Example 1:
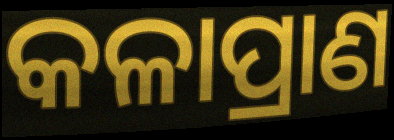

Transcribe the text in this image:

କଳାପ୍ରାଣ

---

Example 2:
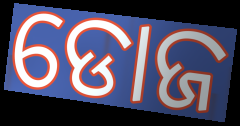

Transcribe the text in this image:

ଡୋଜ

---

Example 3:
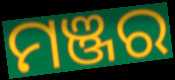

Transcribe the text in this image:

ମଞ୍ଜର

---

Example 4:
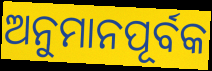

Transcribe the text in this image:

ଅନୁମାନପୂର୍ବକ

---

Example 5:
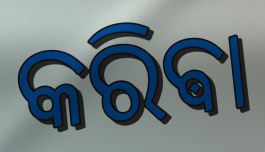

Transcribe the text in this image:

କରିଵା